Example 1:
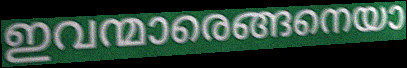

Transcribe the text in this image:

ഇവന്മാരെങ്ങനെയാ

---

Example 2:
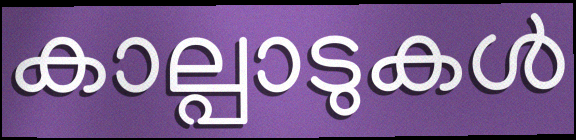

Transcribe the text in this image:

കാല്പാടുകൾ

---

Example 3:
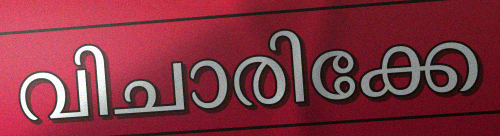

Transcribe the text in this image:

വിചാരിക്കേ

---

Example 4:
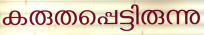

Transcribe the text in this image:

കരുതപ്പെട്ടിരുന്നു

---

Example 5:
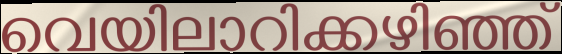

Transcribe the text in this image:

വെയിലാറിക്കഴിഞ്ഞ്